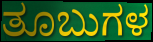
ತೂಬುಗಳ